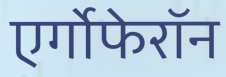
एर्गोफेरॉन